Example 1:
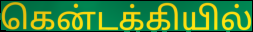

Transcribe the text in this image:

கென்டக்கியில்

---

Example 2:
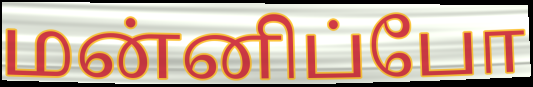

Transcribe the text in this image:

மன்னிப்போ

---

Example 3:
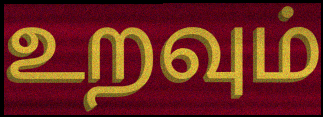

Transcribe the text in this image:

உறவும்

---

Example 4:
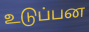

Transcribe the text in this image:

உடுப்பன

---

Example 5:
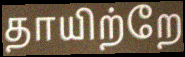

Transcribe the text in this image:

தாயிற்றே